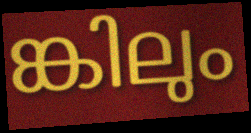
ങ്കിലും